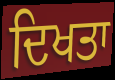
ਦਿਖਤਾ